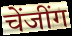
चेंजींग